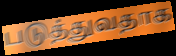
படுத்துவதாக